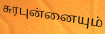
சுரபுன்னையும்